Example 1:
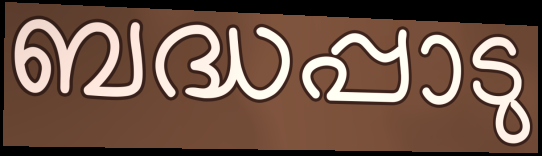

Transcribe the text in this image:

ബദ്ധപ്പാടു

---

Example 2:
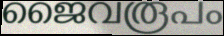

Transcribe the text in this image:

ജൈവരൂപം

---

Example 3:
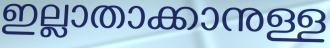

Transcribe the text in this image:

ഇല്ലാതാക്കാനുള്ള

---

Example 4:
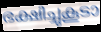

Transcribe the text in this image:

ഭക്ഷിച്ചുകൂടാ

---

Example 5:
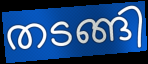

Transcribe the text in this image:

തടങ്ങി